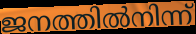
ജനത്തിൽനിന്ന്